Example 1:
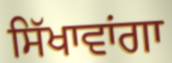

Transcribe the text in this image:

ਸਿੱਖਾਵਾਂਗਾ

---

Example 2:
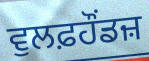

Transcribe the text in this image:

ਵੁਲਫ਼ਹੌਂਡਜ਼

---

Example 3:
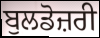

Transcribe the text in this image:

ਬੁਲਡੋਜ਼ਰੀ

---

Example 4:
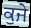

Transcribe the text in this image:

ਕੁਜੇ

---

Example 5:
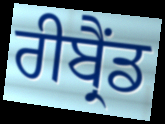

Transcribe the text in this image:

ਰੀਬ੍ਰੈਂਡ